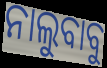
ନାଲୁବାବୁ